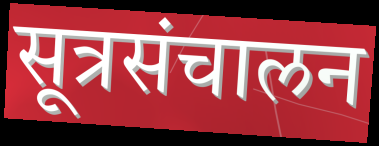
सूत्रसंचालन